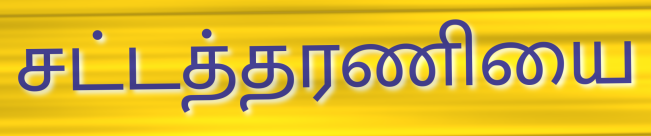
சட்டத்தரணியை